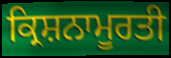
ਕ੍ਰਿਸ਼ਨਾਮੂਰਤੀ